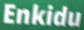
Enkidu